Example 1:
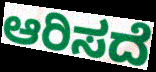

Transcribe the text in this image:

ಆರಿಸದೆ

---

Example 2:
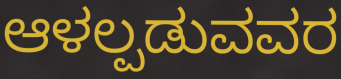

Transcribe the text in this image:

ಆಳಲ್ಪಡುವವರ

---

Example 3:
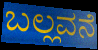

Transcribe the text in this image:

ಬಲ್ಲವನೆ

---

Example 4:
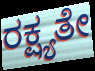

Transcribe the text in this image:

ರಕ್ಷ್ಯತೇ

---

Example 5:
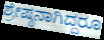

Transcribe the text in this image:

ಶ್ರೇಷ್ಠನಾಗಿದ್ದರೂ